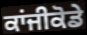
ਕਾਂਜੀਕੋਡੇ